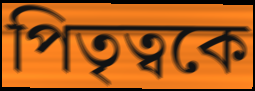
পিতৃত্বকে